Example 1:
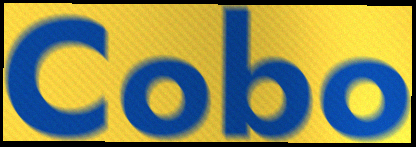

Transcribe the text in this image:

Cobo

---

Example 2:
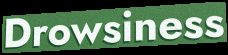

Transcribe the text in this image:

Drowsiness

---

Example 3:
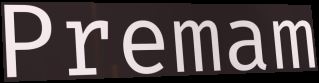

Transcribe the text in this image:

Premam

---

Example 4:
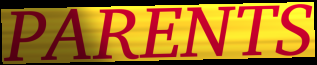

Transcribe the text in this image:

PARENTS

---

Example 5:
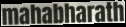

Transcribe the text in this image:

mahabharath